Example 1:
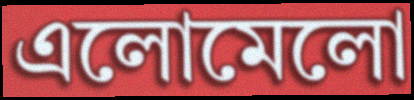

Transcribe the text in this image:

এলোমেলো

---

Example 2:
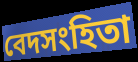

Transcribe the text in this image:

বেদসংহিতা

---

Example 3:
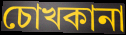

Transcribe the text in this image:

চোখকানা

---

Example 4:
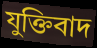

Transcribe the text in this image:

যুক্তিবাদ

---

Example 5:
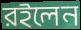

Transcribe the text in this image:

রইলেন